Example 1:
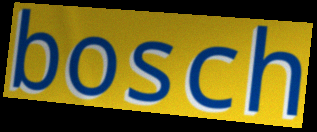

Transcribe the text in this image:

bosch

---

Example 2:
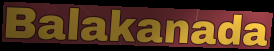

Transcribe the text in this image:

Balakanada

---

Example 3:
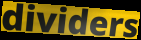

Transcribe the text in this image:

dividers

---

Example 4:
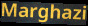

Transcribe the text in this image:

Marghazi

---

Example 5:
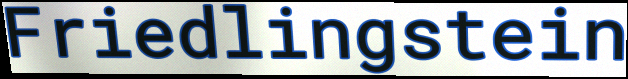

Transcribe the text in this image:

Friedlingstein